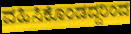
ವಹಿಸಿಕೊಂಡದ್ದರಿಂದ